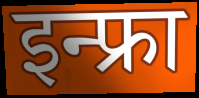
इन्फ्रा